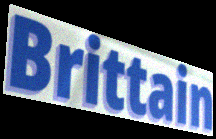
Brittain